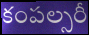
కంపల్సరీ